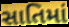
સાતિમાં